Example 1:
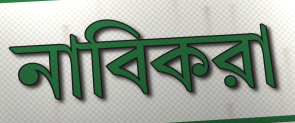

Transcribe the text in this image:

নাবিকরা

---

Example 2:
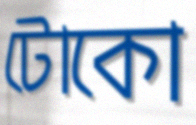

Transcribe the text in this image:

টোকো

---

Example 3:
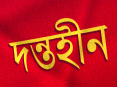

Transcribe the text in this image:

দন্তহীন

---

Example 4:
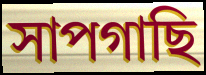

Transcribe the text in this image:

সাপগাছি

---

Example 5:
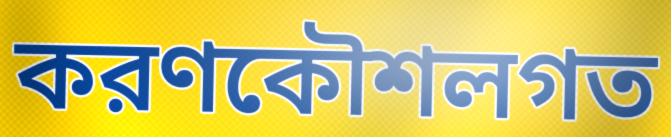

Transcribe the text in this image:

করণকৌশলগত